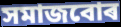
সমাজবোৰ